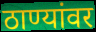
ठाण्यांवर